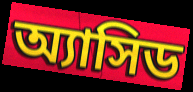
অ্যাসিড